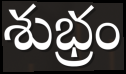
శుభ్రం